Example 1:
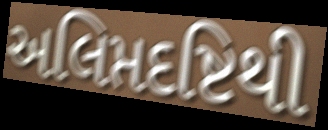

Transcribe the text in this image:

અલિપ્તદષ્ટિથી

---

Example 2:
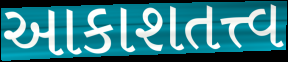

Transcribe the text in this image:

આકાશતત્ત્વ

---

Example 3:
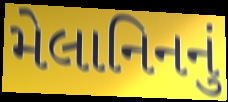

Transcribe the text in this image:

મેલાનિનનું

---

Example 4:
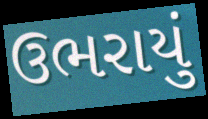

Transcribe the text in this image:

ઉભરાયું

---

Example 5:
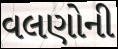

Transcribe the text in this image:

વલણોની